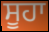
ਸੂਹਾ